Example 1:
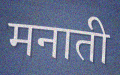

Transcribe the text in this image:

मनाती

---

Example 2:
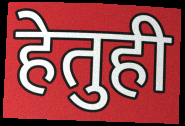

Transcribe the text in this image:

हेतुही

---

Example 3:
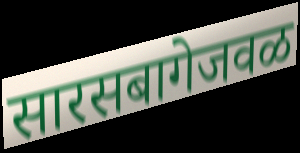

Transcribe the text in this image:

सारसबागेजवळ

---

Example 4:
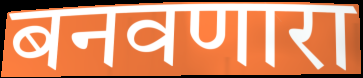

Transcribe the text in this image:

बनवणारा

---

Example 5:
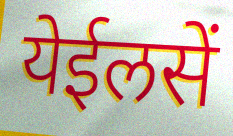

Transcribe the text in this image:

येईलसें